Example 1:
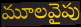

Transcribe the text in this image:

మూలవైపు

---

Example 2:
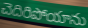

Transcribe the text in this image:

చెదిరిపోయాను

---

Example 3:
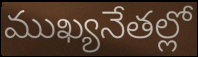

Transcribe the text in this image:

ముఖ్యనేతల్లో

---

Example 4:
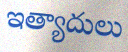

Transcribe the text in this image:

ఇత్యాదులు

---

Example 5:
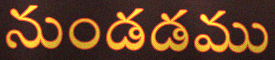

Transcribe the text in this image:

నుండడము